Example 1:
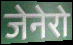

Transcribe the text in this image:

जेनेरो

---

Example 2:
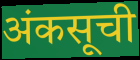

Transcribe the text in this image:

अंकसूची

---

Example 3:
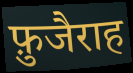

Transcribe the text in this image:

फ़ुजैराह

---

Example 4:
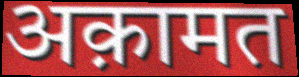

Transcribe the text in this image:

अक़ामत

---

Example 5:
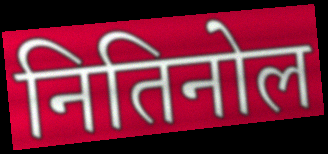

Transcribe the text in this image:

नितिनोल